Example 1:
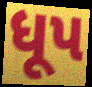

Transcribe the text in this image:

ધૂપ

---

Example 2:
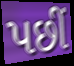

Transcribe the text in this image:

પછીં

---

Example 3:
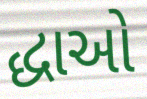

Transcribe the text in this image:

દ્ધાઓ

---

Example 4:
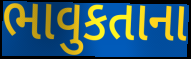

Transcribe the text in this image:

ભાવુકતાના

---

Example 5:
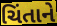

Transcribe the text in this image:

ચિંતાને